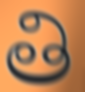
తి